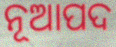
ନୂଆପଦ